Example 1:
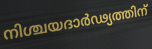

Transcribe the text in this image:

നിശ്ചയദാർഢ്യത്തിന്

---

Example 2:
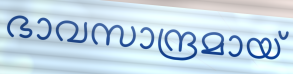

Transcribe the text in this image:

ഭാവസാന്ദ്രമായ്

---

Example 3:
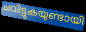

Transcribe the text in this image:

ചവിട്ടുകയുണ്ടായി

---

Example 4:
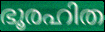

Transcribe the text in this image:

ഭൂരഹിത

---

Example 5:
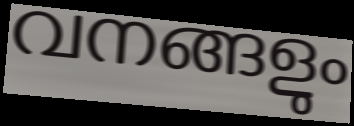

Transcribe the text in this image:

വനങ്ങളും